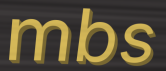
mbs